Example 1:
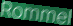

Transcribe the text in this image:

Rommel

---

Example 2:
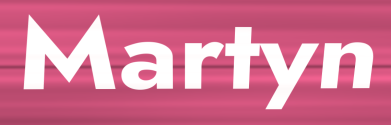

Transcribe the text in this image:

Martyn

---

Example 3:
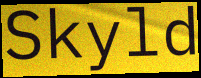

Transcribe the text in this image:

Skyld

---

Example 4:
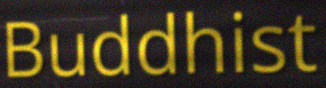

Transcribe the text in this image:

Buddhist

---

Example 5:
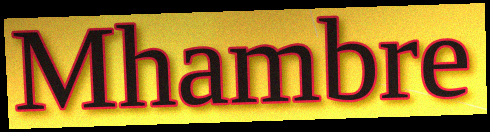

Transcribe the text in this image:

Mhambre